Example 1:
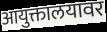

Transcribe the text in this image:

आयुक्तालयावर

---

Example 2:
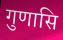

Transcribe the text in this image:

गुणासि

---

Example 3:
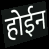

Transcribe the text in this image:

होईन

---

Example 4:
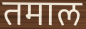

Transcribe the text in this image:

तमाल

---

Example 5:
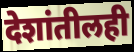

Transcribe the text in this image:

देशांतीलही